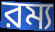
রম্য